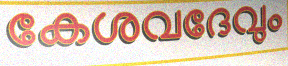
കേശവദേവും